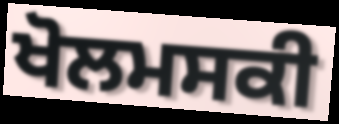
ਖੋਲਮਸਕੀ